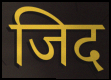
जिद